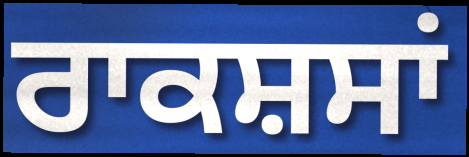
ਰਾਕਸ਼ਸਾਂ